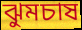
ঝুমচাষ